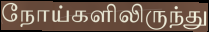
நோய்களிலிருந்து